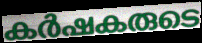
കർഷകരുടെ